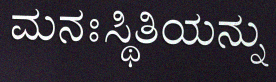
ಮನಃಸ್ಥಿತಿಯನ್ನು